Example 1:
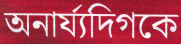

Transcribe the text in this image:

অনার্য্যদিগকে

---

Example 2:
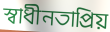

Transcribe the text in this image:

স্বাধীনতাপ্রিয়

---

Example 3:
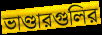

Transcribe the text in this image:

ভাণ্ডারগুলির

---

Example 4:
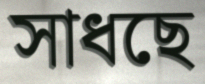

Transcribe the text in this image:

সাধছে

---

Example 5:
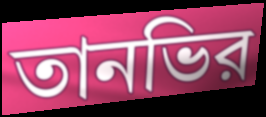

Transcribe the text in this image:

তানভির